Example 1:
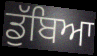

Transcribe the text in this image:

ਡੁੱਬਿਆ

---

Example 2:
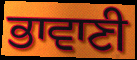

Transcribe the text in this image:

ਭਾਵਾਣੀ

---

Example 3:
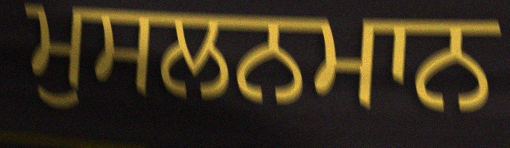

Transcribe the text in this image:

ਮੁਸਲਨਮਾਨ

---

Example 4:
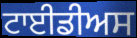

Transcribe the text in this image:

ਟਾਈਡੀਅਸ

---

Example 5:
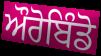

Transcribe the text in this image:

ਔਰੋਬਿੰਡੋ